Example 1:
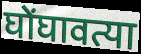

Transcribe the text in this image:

घोंघावत्या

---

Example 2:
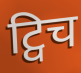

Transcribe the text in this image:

ट्विच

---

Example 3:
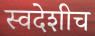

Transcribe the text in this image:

स्वदेशीच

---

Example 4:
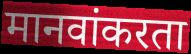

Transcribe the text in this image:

मानवांकरता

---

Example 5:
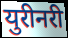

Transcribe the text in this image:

युरीनरी